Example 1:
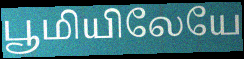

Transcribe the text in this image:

பூமியிலேயே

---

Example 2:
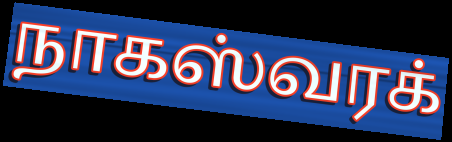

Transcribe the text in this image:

நாகஸ்வரக்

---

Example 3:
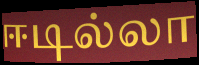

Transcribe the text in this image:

ஈடில்லா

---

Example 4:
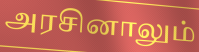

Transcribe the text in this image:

அரசினாலும்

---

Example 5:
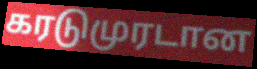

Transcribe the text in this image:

கரடுமுரடான